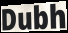
Dubh